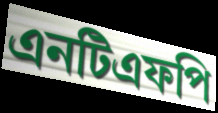
এনটিএফপি